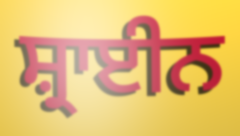
ਸ਼੍ਰਾਈਨ